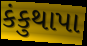
કંકુથાપા